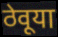
ठेवूया